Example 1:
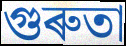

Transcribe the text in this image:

গুৰুতা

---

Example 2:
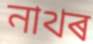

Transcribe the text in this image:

নাথৰ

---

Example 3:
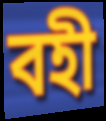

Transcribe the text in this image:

বহী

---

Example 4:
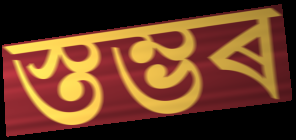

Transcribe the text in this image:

স্তম্ভৰ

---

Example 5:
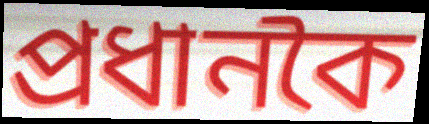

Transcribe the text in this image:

প্ৰধানকৈ